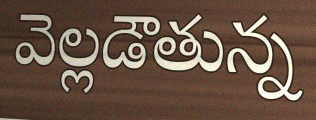
వెల్లడౌతున్న